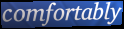
comfortably